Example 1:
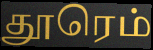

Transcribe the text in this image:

தூரெம்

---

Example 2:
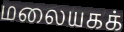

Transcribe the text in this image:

மலையகக்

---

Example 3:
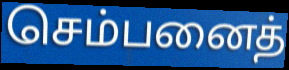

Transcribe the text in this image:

செம்பனைத்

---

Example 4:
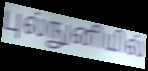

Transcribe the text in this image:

புல்நுனியில்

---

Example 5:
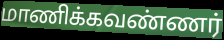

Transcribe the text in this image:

மாணிக்கவண்ணர்